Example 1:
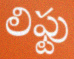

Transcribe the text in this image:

లిఫ్టు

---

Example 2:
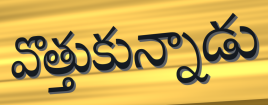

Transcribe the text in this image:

వొత్తుకున్నాడు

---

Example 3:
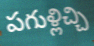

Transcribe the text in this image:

పగుళ్లిచ్చి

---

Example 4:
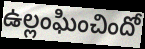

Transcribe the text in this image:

ఉల్లంఘించిందో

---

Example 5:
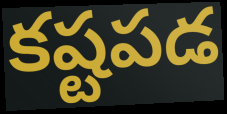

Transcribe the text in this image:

కష్టపడ